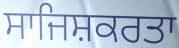
ਸਾਜਿਸ਼ਕਰਤਾ